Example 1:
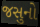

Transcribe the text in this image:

જસુનો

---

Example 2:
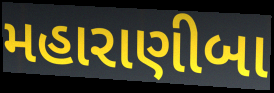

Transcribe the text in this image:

મહારાણીબા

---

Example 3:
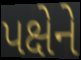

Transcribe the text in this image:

પક્ષેને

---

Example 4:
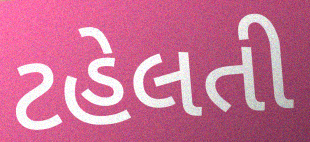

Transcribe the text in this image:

ટહેલતી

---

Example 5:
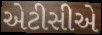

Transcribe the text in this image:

એટીસીએ